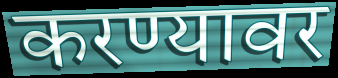
करण्यावर